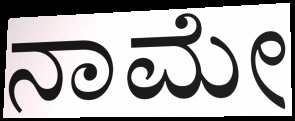
ನಾಮೇ